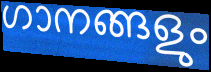
ഗാനങ്ങളും